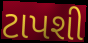
ટાપશી